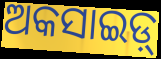
ଅକସାଇଡ଼୍